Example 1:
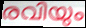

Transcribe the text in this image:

രവിയും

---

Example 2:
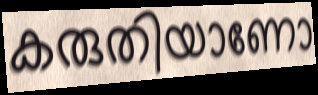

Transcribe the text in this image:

കരുതിയാണോ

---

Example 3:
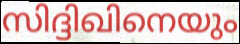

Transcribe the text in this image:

സിദ്ദിഖിനെയും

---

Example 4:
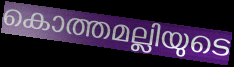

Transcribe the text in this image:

കൊത്തമല്ലിയുടെ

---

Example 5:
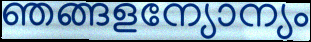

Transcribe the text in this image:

ഞങ്ങളന്യോന്യം